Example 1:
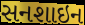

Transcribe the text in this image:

સનશાઇન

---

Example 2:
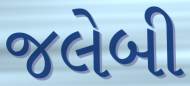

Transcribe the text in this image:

જલેબી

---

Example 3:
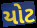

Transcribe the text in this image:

યોટ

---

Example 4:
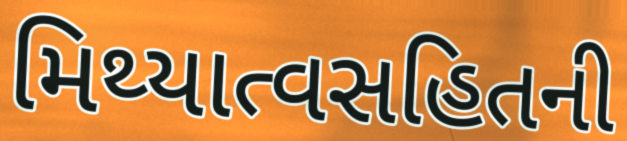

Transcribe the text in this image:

મિથ્યાત્વસહિતની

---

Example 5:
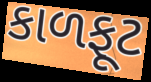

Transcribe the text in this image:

કાળફૂટ